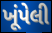
ખૂંપેલી